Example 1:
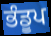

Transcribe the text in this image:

ਭੰਡੂਪ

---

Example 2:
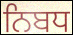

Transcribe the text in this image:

ਨਿਬਧ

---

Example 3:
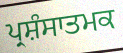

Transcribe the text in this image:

ਪ੍ਰਸ਼ੰਸਾਤਮਕ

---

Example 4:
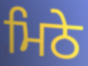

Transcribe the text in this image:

ਮਿਠੇ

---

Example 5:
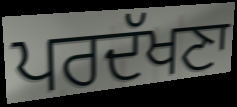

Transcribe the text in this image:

ਪਰਦੱਖਣਾ